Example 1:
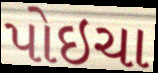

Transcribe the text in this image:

પોઇચા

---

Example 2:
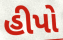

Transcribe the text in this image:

હીપો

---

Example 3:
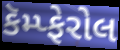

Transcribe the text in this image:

કૅમ્પ્ફેરોલ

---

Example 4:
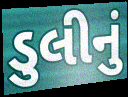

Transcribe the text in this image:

ડુલીનું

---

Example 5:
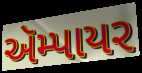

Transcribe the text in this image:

ઍમ્પાયર